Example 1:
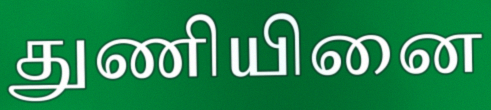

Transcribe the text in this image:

துணியினை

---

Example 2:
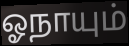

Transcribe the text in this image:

ஓநாயும்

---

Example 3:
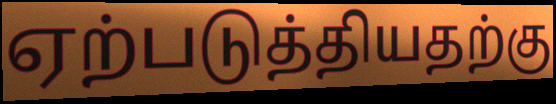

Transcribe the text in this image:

ஏற்படுத்தியதற்கு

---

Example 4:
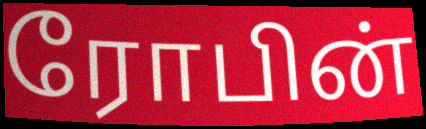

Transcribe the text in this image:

ரோபின்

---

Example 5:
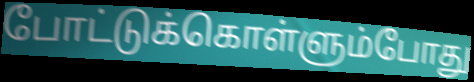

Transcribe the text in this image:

போட்டுக்கொள்ளும்போது